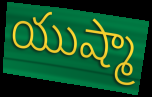
యుష్మా